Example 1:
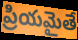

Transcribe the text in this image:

ప్రియమైతే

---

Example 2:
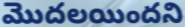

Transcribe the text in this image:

మొదలయిందని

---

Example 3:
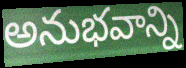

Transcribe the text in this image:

అనుభవాన్ని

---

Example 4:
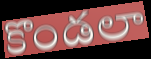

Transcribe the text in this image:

కొండలా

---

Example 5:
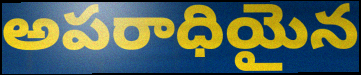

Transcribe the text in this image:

అపరాధియైన